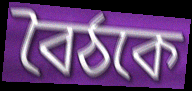
বৈঠকে